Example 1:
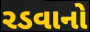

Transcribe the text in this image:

રડવાનો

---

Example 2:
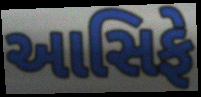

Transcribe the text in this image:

આસિફે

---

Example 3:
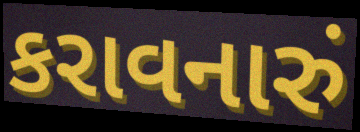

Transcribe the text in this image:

કરાવનારું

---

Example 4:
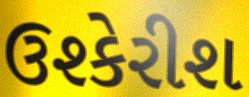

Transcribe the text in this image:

ઉશ્કેરીશ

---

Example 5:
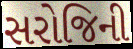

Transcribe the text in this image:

સરોજિની